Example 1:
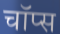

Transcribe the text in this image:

चॉप्स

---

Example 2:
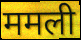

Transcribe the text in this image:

ममली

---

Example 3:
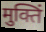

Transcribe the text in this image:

मुक्तिं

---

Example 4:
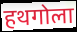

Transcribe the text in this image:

हथगोला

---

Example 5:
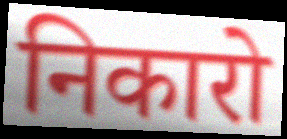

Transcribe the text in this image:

निकारो